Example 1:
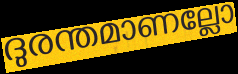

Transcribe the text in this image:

ദുരന്തമാണല്ലോ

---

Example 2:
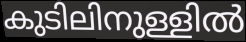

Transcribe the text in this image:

കുടിലിനുള്ളിൽ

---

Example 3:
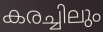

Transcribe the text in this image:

കരച്ചിലും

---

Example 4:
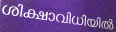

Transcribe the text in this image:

ശിക്ഷാവിധിയിൽ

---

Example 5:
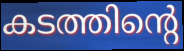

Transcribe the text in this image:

കടത്തിന്റെ